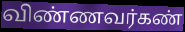
விண்ணவர்கண்